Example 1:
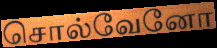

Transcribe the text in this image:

சொல்வேனோ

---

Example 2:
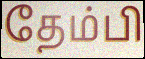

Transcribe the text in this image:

தேம்பி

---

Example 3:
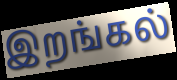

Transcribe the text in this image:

இறங்கல்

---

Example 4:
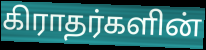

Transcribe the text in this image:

கிராதர்களின்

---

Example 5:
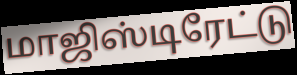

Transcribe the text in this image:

மாஜிஸ்டிரேட்டு